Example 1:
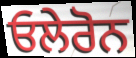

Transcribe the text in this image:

ਓਲੇਰੋਨ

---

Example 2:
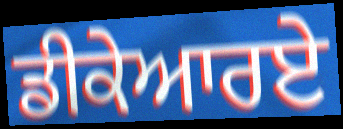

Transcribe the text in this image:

ਡੀਕੇਆਰਏ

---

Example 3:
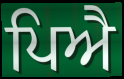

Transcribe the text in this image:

ਪਿਐ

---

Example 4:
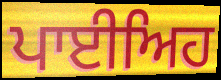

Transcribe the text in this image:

ਪਾਈਅਿਹ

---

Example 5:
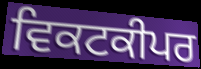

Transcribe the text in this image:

ਵਿਕਟਕੀਪਰ